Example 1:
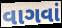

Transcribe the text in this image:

વાગવાં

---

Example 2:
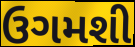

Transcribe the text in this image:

ઉગમશી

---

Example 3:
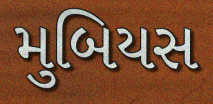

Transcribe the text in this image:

મુબિયસ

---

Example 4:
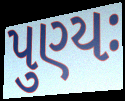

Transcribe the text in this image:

પુણ્યઃ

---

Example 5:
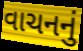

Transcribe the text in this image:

વાચનનું